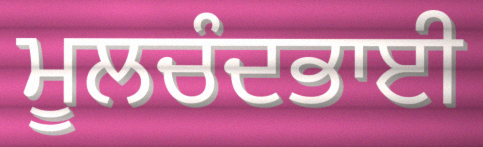
ਮੂਲਚੰਦਭਾਈ